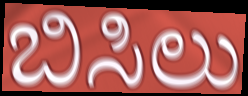
ಬಿಸಿಲು